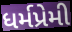
ધર્મપ્રેમી